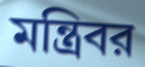
মন্ত্রিবর